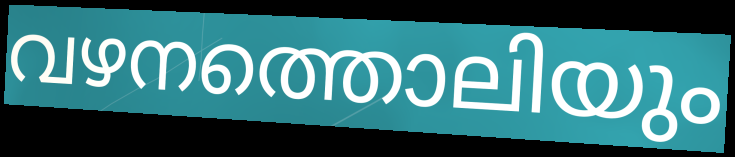
വഴനത്തൊലിയും